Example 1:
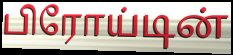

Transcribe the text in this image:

பிரோய்டின்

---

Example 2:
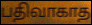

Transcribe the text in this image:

பதிவாகாத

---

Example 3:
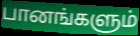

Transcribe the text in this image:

பானங்களும்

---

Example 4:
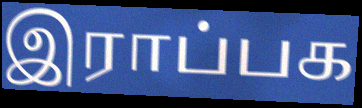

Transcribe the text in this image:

இராப்பக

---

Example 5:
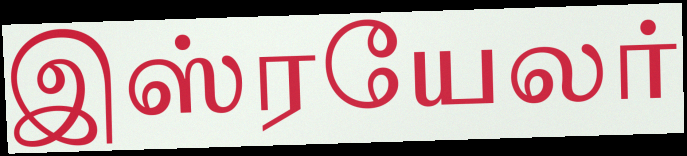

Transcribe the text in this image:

இஸ்ரயேலர்